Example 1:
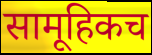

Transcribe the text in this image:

सामूहिकच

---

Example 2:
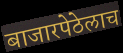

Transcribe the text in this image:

बाजारपेठेलाच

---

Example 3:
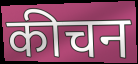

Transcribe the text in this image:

कीचन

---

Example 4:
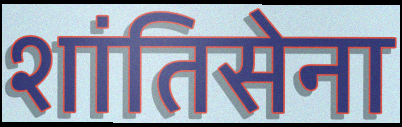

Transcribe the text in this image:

शांतिसेना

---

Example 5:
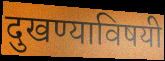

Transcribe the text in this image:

दुखण्याविषयी